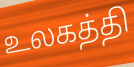
உலகத்தி